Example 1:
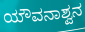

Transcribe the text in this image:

ಯೌವನಾಶ್ವನ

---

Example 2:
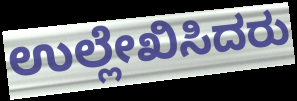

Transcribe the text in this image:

ಉಲ್ಲೇಖಿಸಿದರು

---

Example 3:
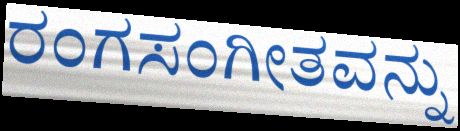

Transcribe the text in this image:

ರಂಗಸಂಗೀತವನ್ನು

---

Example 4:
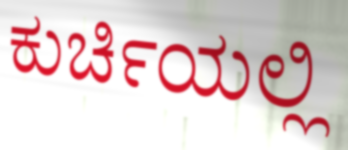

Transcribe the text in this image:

ಕುರ್ಚಿಯಲ್ಲಿ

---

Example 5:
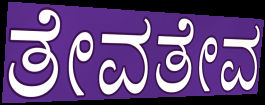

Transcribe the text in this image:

ತೇವತೇವ